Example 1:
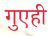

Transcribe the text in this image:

गुएही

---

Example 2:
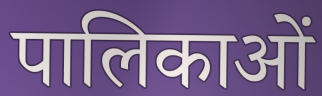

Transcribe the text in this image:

पालिकाओं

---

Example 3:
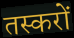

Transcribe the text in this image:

तस्करों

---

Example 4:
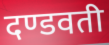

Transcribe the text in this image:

दण्डवती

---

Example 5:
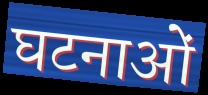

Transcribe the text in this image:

घटनाओं